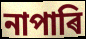
নাপাৰি